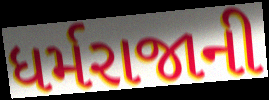
ધર્મરાજાની